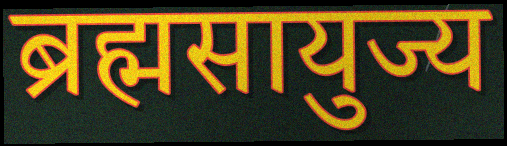
ब्रह्मसायुज्य